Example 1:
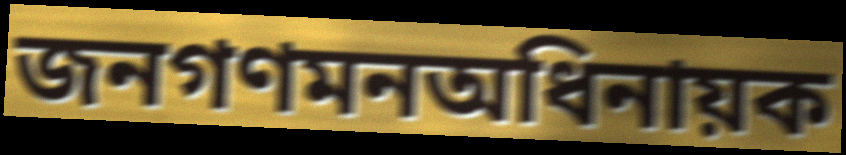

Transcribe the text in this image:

জনগণমনঅধিনায়ক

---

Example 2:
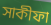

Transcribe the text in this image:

সাকীফা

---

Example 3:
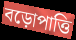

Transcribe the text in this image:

বড়োপাত্তি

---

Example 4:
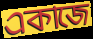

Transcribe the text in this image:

একাজে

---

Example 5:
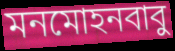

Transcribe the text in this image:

মনমোহনবাবু